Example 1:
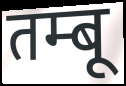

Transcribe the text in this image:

तम्बू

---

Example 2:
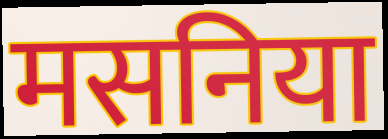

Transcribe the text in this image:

मसनिया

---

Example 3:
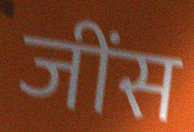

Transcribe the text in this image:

जींस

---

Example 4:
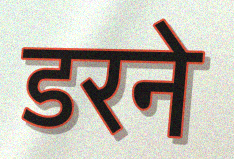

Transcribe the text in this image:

डरने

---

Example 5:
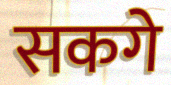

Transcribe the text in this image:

सकगे